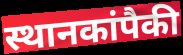
स्थानकांपैकी